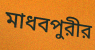
মাধবপুরীর